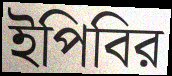
ইপিবির